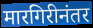
मारगिरीनंतर